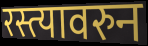
रस्त्यावरुन